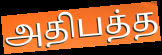
அதிபத்த